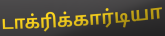
டாக்ரிக்கார்டியா